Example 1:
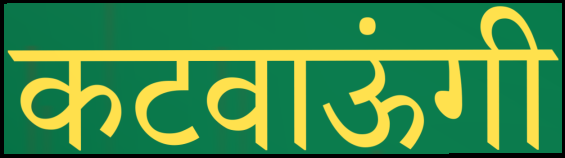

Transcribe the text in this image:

कटवाऊंगी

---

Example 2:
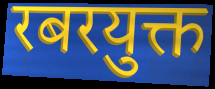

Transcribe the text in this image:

रबरयुक्त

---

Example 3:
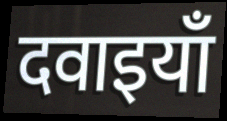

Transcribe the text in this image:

दवाइयाँ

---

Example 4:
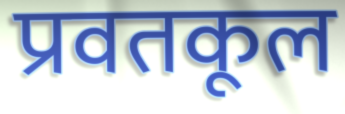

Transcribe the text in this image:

प्रवतकूल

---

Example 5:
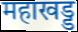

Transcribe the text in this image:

महाखड्ड